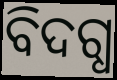
ବିଦଗ୍ଧ